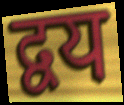
द्वय